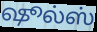
ஷூல்ஸ்